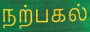
நற்பகல்